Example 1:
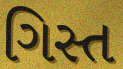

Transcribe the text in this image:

ગિસ્ત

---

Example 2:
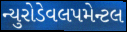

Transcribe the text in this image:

ન્યુરોડેવલપમેન્ટલ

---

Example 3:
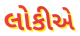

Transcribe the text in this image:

લોકીએ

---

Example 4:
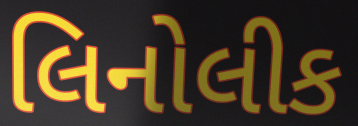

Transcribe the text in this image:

લિનોલીક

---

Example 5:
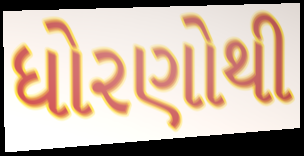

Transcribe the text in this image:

ધોરણોથી